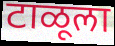
टाळूला